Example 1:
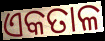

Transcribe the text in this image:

ଏକତାଳ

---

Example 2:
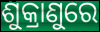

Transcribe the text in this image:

ଶୁକ୍ରାଣୁରେ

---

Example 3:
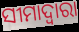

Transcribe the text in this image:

ସୀମାଦ୍ଵାରା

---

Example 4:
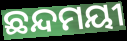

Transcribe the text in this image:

ଛନ୍ଦମୟୀ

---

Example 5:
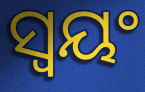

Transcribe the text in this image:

ସ୍ଵୟଂ